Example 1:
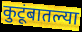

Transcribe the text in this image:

कुटूंबातल्या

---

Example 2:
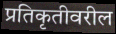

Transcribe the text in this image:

प्रतिकृतीवरील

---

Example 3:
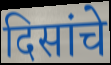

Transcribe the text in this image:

दिसांचे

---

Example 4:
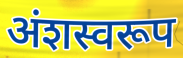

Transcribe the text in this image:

अंशस्वरूप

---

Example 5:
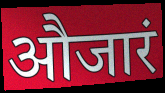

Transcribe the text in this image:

औजारं